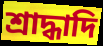
শ্রাদ্ধাদি